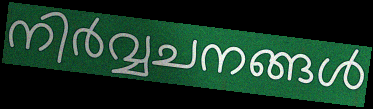
നിർവ്വചനങ്ങൾ